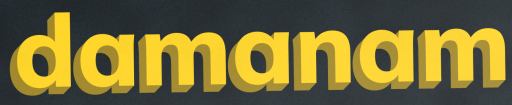
damanam